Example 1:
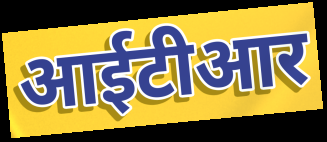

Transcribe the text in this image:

आईटीआर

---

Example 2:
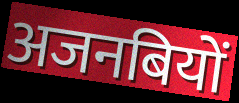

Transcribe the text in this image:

अजनबियों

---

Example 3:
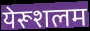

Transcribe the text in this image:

येरूशलम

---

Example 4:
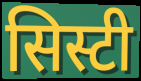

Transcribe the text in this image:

सिस्टी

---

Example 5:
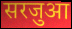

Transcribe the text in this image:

सरजुआ